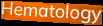
Hematology